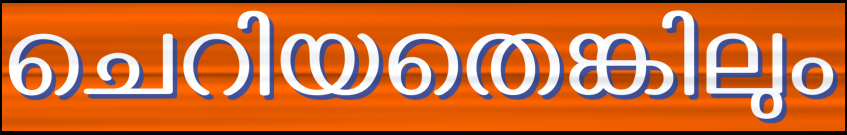
ചെറിയതെങ്കിലും